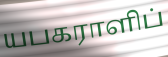
யபகராளிப்